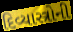
દિવ્યાસ્ત્રોની